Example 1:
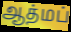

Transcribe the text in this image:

ஆத்மப்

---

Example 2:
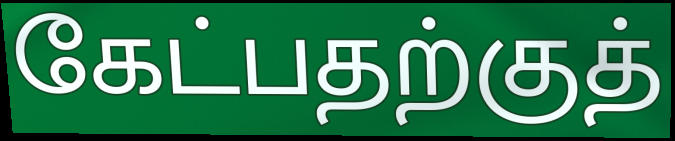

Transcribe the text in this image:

கேட்பதற்குத்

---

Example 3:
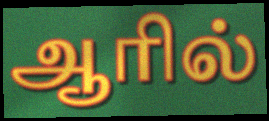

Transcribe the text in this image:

ஆரில்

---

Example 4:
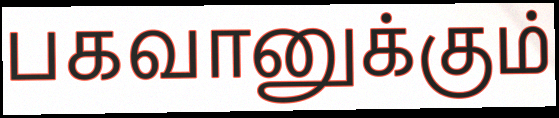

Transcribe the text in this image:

பகவானுக்கும்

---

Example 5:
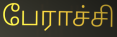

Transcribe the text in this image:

பேராச்சி